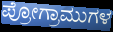
ಪ್ರೋಗ್ರಾಮುಗಳ